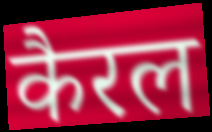
कैरल